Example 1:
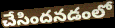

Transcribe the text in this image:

చేసిందనడంలో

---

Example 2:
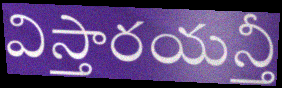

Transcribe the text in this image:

విస్తారయన్తీ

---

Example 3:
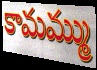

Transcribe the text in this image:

కామమ్ము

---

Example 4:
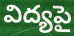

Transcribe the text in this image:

విద్యపై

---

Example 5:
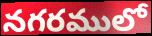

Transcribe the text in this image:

నగరములో